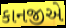
કાનજીએ